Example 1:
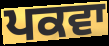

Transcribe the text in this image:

ਪਕਵਾ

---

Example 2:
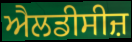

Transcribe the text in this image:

ਐਲਡੀਸੀਜ਼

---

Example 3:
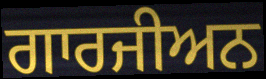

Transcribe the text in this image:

ਗਾਰਜੀਅਨ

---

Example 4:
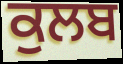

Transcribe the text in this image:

ਕੁਲਬ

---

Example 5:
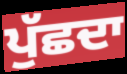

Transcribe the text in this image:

ਪੁੱਛਦਾ